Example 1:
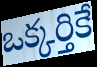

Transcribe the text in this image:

ఒక్కర్తికే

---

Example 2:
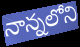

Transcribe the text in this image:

నాన్నలోని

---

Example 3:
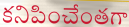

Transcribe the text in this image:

కనిపించేంతగా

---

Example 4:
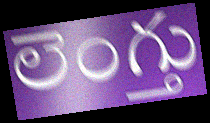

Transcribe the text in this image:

లెంగ్తు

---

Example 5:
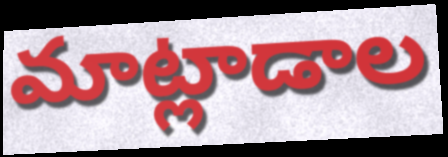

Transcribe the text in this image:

మాట్లాడాల